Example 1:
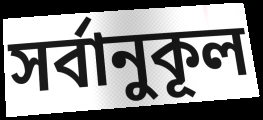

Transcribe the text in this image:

সর্বানুকূল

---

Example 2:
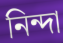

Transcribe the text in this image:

নিন্দা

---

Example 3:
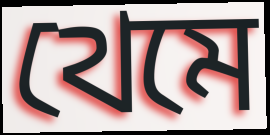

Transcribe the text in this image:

থেমে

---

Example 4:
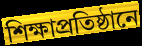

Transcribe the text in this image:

শিক্ষাপ্রতিষ্ঠানে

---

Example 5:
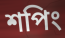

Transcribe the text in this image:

শপিং